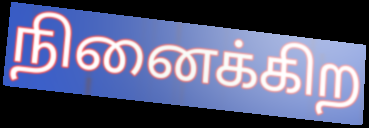
நினைக்கிற